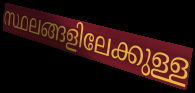
സ്ഥലങ്ങളിലേക്കുള്ള